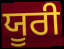
ਯੂਰੀ